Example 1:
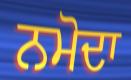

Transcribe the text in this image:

ਨਮੋਦਾ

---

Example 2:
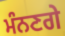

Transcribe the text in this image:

ਮੰਨਣਗੇ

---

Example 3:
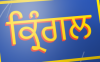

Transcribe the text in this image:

ਕ੍ਰਿੰਗਲ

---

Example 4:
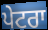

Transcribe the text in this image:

ਪੇਟਰਾ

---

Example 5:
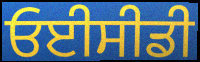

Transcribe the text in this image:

ਓਈਸੀਡੀ